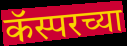
कॅस्परच्या